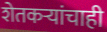
शेतकऱ्यांचाही